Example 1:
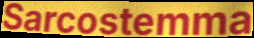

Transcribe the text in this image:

Sarcostemma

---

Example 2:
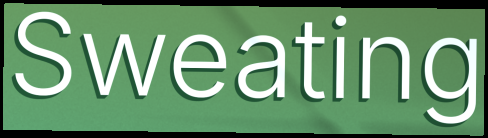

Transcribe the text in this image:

Sweating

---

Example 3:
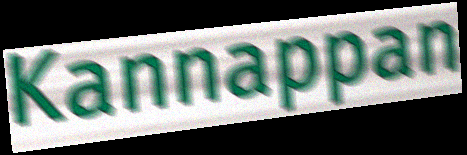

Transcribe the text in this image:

Kannappan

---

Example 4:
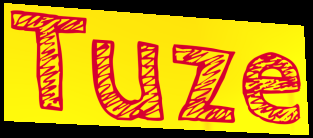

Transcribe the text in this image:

Tuze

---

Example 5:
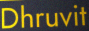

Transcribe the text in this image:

Dhruvit